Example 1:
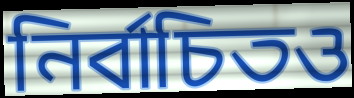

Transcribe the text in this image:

নির্বাচিতও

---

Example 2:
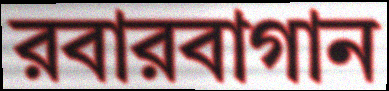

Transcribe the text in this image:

রবারবাগান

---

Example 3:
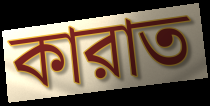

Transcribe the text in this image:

কারাত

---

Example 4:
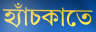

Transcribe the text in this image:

হ্যাঁচকাতে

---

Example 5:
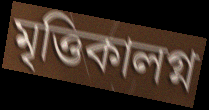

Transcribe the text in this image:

মৃত্তিকালগ্ন